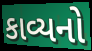
કાવ્યનો